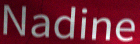
Nadine